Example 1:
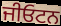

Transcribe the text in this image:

ਜੀਓਟਨ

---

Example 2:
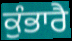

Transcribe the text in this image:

ਕੁੰਭਾਰੈ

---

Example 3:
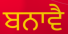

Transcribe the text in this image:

ਬਨਾਵੈ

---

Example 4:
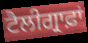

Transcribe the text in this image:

ਟੈਲੀਗ੍ਰਾਫ਼ਾਂ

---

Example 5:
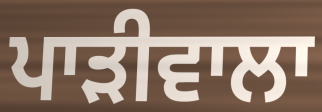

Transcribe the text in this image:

ਪਾੜੀਵਾਲਾ